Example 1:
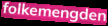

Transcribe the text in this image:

folkemengden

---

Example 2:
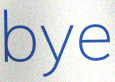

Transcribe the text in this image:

bye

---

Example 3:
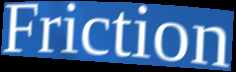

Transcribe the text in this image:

Friction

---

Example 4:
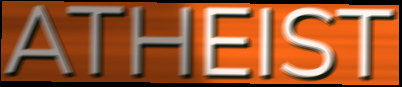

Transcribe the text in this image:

ATHEIST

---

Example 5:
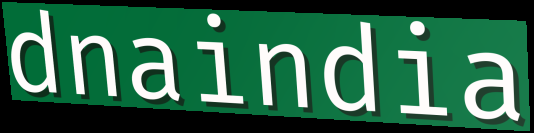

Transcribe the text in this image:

dnaindia